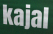
kajal